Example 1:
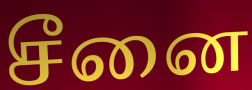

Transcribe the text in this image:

சீனை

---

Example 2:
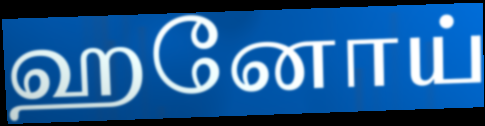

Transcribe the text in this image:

ஹனோய்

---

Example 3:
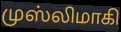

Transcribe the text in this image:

முஸ்லிமாகி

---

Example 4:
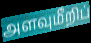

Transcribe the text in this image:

அளவுமீறிப்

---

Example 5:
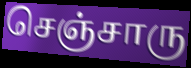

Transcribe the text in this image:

செஞ்சாரு